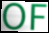
OF